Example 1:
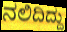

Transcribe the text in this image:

ನಲಿದಿದ್ದು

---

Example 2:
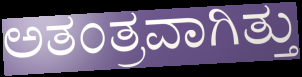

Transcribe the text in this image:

ಅತಂತ್ರವಾಗಿತ್ತು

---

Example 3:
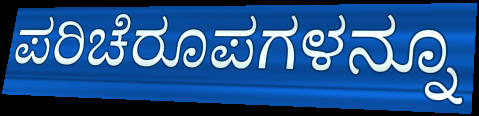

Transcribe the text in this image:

ಪರಿಚೆರೂಪಗಳನ್ನೂ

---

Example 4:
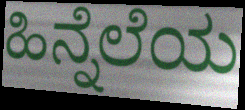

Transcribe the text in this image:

ಹಿನ್ನೆಲೆಯ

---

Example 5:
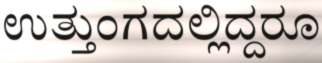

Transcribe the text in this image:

ಉತ್ತುಂಗದಲ್ಲಿದ್ದರೂ